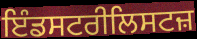
ਇੰਡਸਟਰੀਲਿਸਟਜ਼